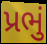
પ્રભું